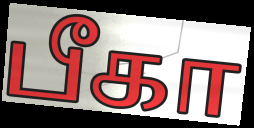
பீகா